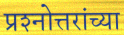
प्रश्नोत्तरांच्या